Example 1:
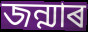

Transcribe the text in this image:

জন্মাৰ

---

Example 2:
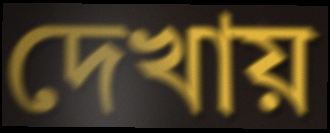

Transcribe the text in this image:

দেখায়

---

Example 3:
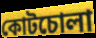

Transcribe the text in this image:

কোটচোলা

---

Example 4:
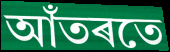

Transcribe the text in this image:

আঁতৰতে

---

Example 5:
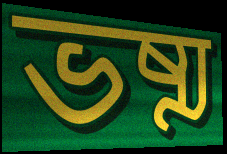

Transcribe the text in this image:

ভষ্ম